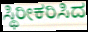
ಸ್ಥಿರೀಕರಿಸಿದ